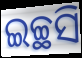
ଇଚ୍ଛସି